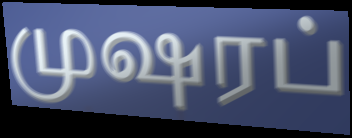
முஷரப்